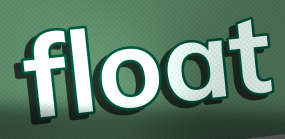
float